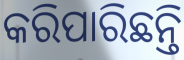
କରିପାରିଛନ୍ତି